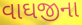
વાઘજીના